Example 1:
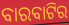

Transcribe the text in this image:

ବାରବାଟିର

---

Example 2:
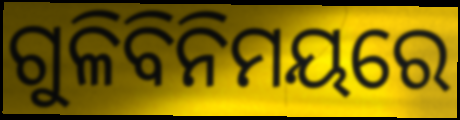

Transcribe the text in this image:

ଗୁଳିବିନିମୟରେ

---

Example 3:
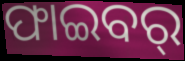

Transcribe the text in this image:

ଫାଇବର୍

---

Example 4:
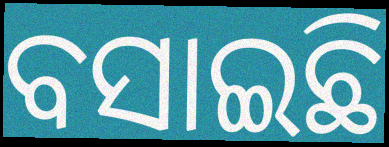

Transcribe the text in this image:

ବସାଇଛି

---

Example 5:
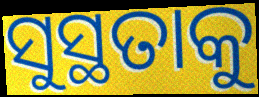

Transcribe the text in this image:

ସୁସ୍ଥତାକୁ